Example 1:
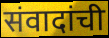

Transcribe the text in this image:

संवादांची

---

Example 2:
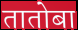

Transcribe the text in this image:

तातोबा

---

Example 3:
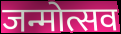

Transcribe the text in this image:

जन्मोत्सव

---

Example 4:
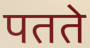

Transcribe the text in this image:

पतते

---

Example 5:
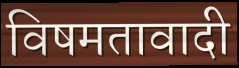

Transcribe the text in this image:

विषमतावादी